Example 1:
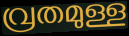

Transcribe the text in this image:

വ്രതമുള്ള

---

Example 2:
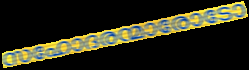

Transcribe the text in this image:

സഹോദരന്മാരോടോ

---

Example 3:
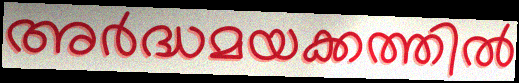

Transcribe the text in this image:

അർദ്ധമയക്കത്തിൽ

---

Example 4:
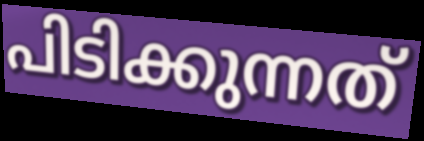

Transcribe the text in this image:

പിടിക്കുന്നത്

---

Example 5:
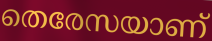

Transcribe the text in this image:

തെരേസയാണ്